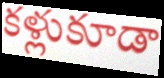
కళ్లుకూడా